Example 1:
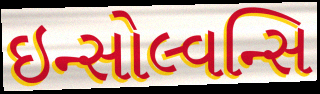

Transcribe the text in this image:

ઇન્સોલ્વન્સિ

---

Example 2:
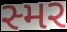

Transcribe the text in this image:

સ્મર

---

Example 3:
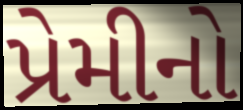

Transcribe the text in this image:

પ્રેમીનો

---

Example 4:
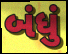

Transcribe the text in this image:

બંધું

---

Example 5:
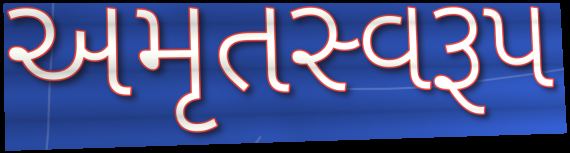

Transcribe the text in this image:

અમૃતસ્વરૂપ